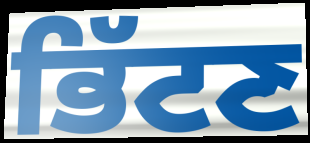
ਭਿੱਟਣ